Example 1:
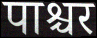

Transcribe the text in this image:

पाश्चर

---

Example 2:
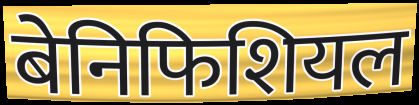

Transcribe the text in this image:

बेनिफिशियल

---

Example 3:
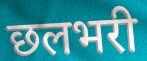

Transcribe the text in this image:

छलभरी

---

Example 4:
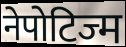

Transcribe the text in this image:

नेपोटिज्‍म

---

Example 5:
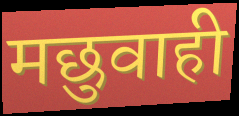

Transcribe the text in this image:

मछुवाही